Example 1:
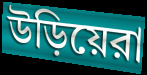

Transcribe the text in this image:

উড়িয়েরা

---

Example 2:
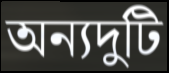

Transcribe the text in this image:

অন্যদুটি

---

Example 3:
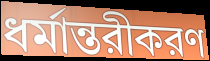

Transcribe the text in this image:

ধর্মান্তরীকরণ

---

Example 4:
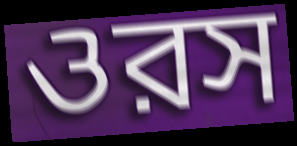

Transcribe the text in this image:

ওরস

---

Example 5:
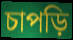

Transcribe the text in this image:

চাপড়ি